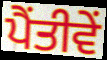
ਪੈਂਤੀਵੇਂ